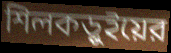
শিলকড়ুইয়ের